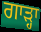
ਗਾੜ੍ਹਾ